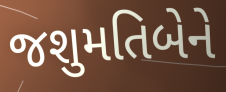
જશુમતિબેને